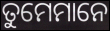
ତୁମେମାନେ